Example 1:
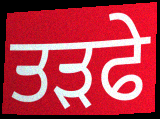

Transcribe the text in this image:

ਤੜਫੇ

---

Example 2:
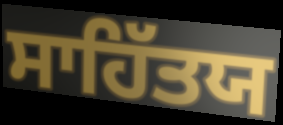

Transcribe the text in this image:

ਸਾਹਿੱਤਯ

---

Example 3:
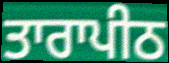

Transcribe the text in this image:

ਤਾਰਾਪੀਠ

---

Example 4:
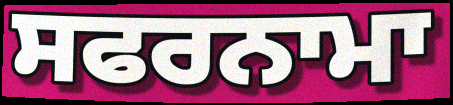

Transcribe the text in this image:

ਸਫਰਨਾਮਾ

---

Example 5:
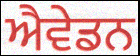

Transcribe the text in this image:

ਐਵੇਡਨ